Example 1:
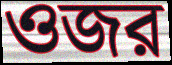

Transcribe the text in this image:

ওজর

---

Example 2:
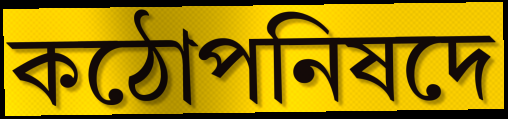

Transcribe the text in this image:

কঠোপনিষদে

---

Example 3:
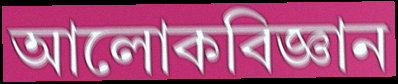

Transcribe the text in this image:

আলোকবিজ্ঞান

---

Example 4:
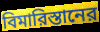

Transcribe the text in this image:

বিমারিস্তানের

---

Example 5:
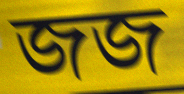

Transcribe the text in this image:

জজ